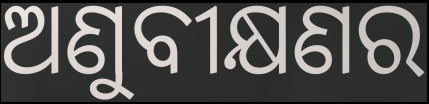
ଅଣୁବୀକ୍ଷଣର